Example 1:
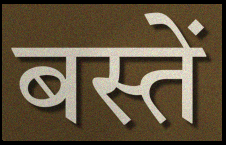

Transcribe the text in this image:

बस्तें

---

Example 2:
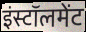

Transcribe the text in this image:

इंस्टॉलमेंट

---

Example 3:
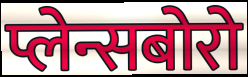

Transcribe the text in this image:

प्लेन्सबोरो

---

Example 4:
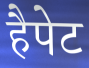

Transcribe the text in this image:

हैपेट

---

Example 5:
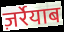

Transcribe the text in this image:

ज़र्रेयाब